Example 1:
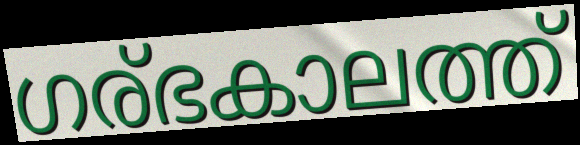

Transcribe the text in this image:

ഗര്ഭകാലത്ത്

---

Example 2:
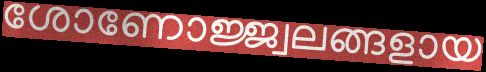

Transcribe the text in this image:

ശോണോജ്ജ്വലങ്ങളായ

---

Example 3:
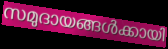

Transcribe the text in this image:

സമുദായങ്ങൾക്കായി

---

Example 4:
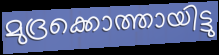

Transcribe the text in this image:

മുദ്രക്കൊത്തായിട്ടു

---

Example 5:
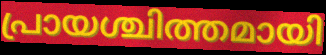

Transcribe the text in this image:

പ്രായശ്ചിത്തമായി